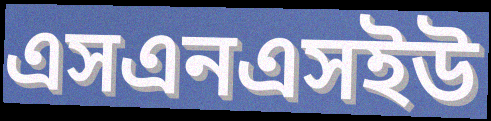
এসএনএসইউ